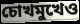
চোখমুখেও